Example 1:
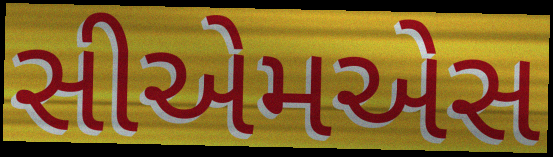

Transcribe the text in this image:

સીએમએસ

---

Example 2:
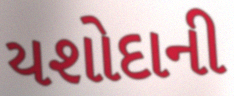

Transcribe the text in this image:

યશોદાની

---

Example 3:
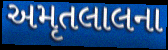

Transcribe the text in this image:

અમૃતલાલના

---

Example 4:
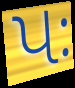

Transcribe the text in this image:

પઃ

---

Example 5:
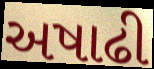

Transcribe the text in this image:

અષાઢી